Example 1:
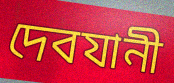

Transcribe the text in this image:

দেবযানী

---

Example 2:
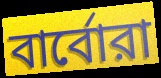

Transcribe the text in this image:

বার্বোরা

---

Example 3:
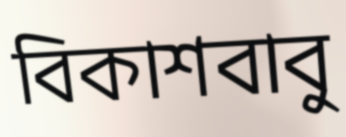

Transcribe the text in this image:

বিকাশবাবু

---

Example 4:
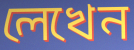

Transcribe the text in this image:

লেখেন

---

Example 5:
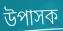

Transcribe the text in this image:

উপাসক